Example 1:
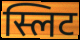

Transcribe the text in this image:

स्लिट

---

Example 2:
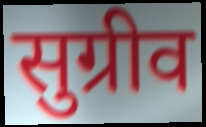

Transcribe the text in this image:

सुग्रीव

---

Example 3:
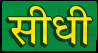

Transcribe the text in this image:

सीधी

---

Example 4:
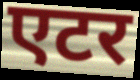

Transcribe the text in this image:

एटर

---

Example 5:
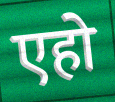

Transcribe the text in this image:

एहो